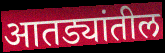
आतड्यांतील